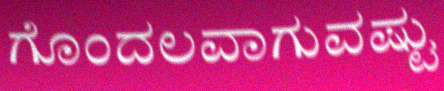
ಗೊಂದಲವಾಗುವಷ್ಟು